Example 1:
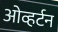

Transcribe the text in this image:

ओव्हर्टन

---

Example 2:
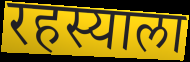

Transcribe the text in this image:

रहस्याला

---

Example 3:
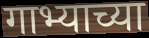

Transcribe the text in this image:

गाभ्याच्या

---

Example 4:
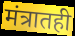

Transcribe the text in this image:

मंत्रातही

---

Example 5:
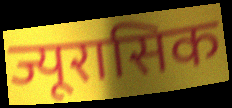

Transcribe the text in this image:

ज्यूरासिक